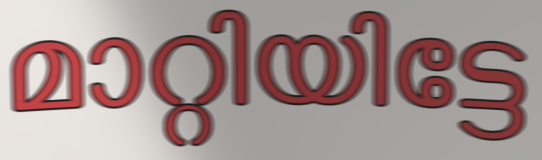
മാറ്റിയിട്ടേ